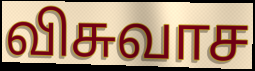
விசுவாச